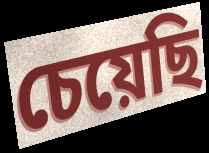
চেয়েছি